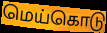
மெய்கொடு